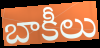
బాకీలు